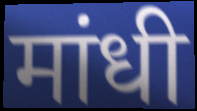
मांधी